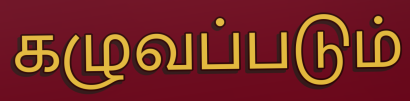
கழுவப்படும்